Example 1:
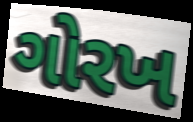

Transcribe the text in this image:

ગોરખ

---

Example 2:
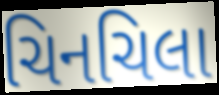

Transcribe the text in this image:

ચિનચિલા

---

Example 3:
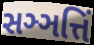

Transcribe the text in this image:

સઞ્ઞત્તિં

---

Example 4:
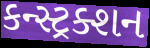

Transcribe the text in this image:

કન્સ્ટ્રક્શન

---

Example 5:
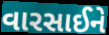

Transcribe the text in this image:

વારસાઈને